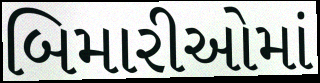
બિમારીઓમાં